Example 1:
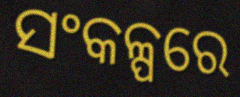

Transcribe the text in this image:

ସଂକଳ୍ପରେ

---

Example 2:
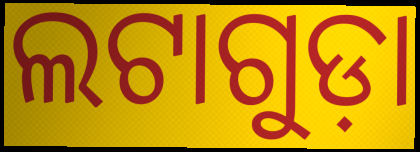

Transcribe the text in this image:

ଲଟାଗୁଡ଼ା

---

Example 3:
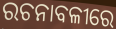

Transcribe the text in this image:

ରଚନାବଳୀରେ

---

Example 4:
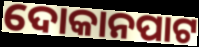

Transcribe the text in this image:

ଦୋକାନପାଟ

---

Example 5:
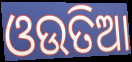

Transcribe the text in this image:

ଓଉତିଆ